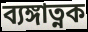
ব্যঙ্গাত্নক